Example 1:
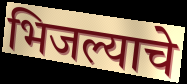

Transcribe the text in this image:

भिजल्याचे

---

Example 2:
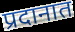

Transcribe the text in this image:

प्रदानात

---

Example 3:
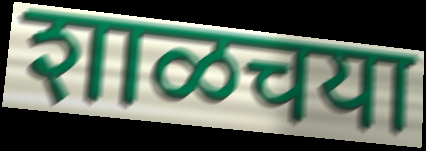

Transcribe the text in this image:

शाळचया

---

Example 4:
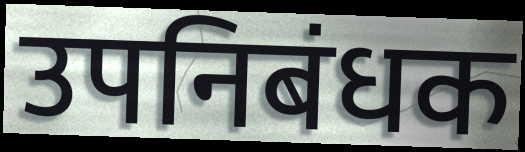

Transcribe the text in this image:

उपनिबंधक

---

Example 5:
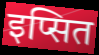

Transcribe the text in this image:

इप्सित